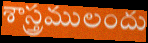
శాస్త్రములందు